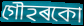
গৌহৰকো